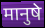
मानुषे